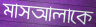
মাসআলাকে